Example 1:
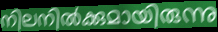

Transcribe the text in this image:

നിലനിൽക്കുമായിരുന്നു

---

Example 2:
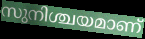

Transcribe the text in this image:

സുനിശ്ചയമാണ്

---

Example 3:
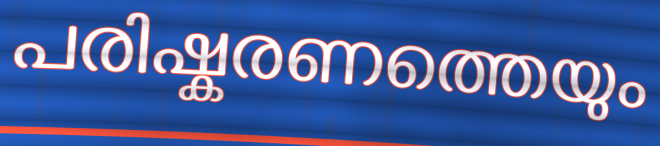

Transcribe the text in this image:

പരിഷ്കരണത്തെയും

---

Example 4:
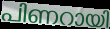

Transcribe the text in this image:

പിണറായി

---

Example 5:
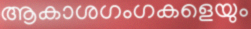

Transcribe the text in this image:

ആകാശഗംഗകളെയും